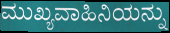
ಮುಖ್ಯವಾಹಿನಿಯನ್ನು